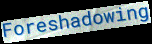
Foreshadowing